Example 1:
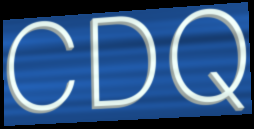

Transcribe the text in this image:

CDQ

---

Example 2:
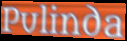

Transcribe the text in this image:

Pulinda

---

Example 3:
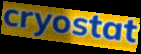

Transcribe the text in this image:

cryostat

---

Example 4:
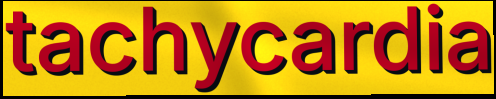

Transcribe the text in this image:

tachycardia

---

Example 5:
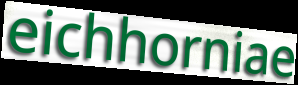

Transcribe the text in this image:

eichhorniae